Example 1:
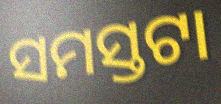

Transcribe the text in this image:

ସମସ୍ତଟା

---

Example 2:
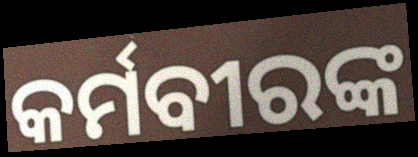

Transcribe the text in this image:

କର୍ମବୀରଙ୍କ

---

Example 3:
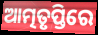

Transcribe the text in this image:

ଆତ୍ମତୃପ୍ତିରେ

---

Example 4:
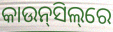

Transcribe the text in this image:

କାଉନ୍‌ସିଲ୍‌ରେ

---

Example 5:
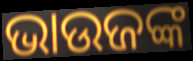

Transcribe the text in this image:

ଭାଉଜଙ୍କ